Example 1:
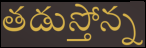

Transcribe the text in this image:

తడుస్తోన్న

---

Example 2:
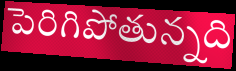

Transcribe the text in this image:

పెరిగిపోతున్నది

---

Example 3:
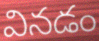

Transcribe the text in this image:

వినడం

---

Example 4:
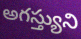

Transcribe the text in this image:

అగస్త్యుని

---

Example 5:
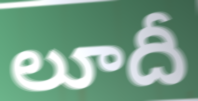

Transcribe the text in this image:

లూదీ